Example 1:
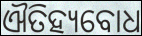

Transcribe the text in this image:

ଐତିହ୍ୟବୋଧ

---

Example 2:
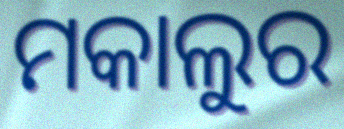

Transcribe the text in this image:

ମକାଲୁର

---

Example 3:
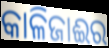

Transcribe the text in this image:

କାଳିଜାଈର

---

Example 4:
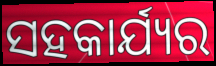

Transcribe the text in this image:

ସହକାର୍ଯ୍ୟର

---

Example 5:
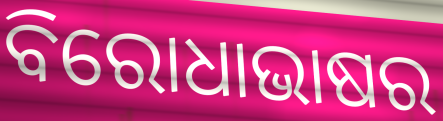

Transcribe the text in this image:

ବିରୋଧାଭାଷର